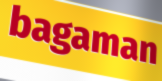
bagaman